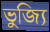
ভুজ্যি